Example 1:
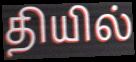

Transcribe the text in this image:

தியில்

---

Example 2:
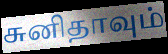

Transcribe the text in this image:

சுனிதாவும்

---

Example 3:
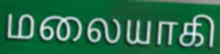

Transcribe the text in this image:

மலையாகி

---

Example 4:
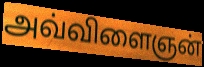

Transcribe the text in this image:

அவ்விளைஞன்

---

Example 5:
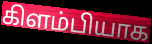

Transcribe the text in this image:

கிளம்பியாக